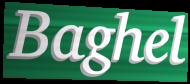
Baghel